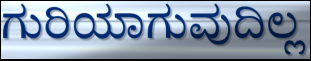
ಗುರಿಯಾಗುವುದಿಲ್ಲ